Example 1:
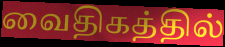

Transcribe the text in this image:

வைதிகத்தில்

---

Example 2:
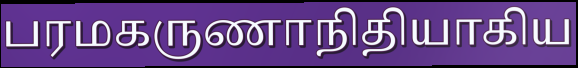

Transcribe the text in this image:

பரமகருணாநிதியாகிய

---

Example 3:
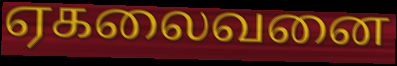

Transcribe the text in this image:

ஏகலைவனை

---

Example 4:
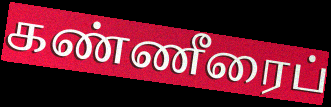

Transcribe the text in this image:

கண்ணீரைப்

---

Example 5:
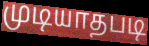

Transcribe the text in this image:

முடியாதபடி